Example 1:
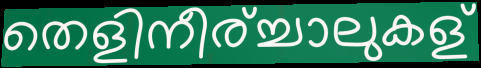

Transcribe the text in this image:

തെളിനീര്ച്ചാലുകള്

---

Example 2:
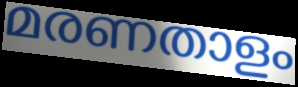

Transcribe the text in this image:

മരണതാളം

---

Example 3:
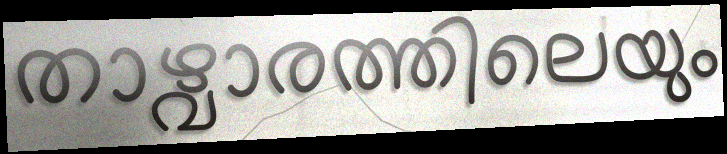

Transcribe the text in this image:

താഴ്വാരത്തിലെയും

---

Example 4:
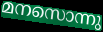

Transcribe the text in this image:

മനസൊന്നു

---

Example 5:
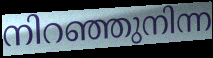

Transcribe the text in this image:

നിറഞ്ഞുനിന്ന